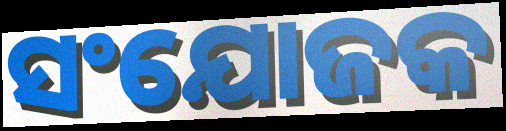
ସଂଯୋଜକ